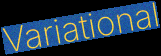
Variational